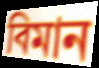
বিমান